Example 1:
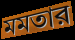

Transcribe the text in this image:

মমতার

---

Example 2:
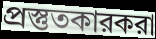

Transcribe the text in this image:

প্রস্তুতকারকরা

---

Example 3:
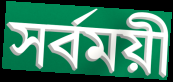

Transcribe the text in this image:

সর্বময়ী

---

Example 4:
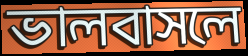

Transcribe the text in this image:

ভালবাসলে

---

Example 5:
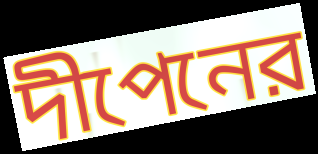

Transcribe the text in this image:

দীপেনের